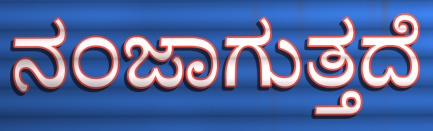
ನಂಜಾಗುತ್ತದೆ